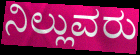
ನಿಲ್ಲುವರು